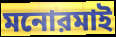
মনোরমাই